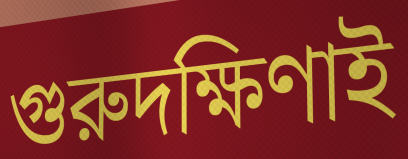
গুরুদক্ষিণাই